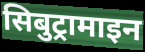
सिबुट्रामाइन